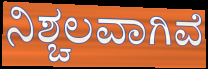
ನಿಶ್ಚಲವಾಗಿವೆ